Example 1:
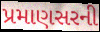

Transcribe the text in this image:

પ્રમાણસરની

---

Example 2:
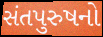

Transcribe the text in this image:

સંતપુરુષનો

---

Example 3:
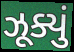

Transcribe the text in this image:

ઝૂક્યું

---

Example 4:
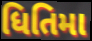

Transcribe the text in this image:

ધિતિમા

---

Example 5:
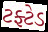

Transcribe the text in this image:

ટફ્ટેડ